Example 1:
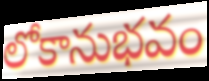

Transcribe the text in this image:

లోకానుభవం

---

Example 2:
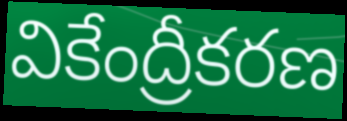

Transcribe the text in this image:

వికేంద్రీకరణ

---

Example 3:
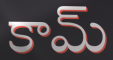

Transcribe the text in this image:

కామ్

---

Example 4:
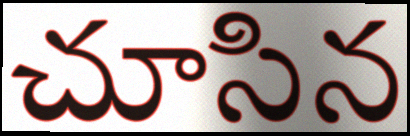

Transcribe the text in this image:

చూసిన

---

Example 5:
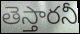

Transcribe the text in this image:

తెస్తారనీ